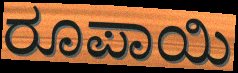
ರೂಪಾಯಿ